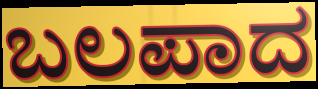
ಬಲಪಾದ